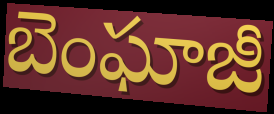
బెంఘాజీ